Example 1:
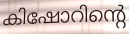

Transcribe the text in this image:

കിഷോറിന്റെ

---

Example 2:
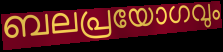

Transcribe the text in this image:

ബലപ്രയോഗവും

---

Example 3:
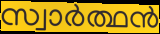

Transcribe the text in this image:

സ്വാർത്ഥൻ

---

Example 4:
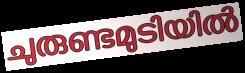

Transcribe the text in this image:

ചുരുണ്ടമുടിയിൽ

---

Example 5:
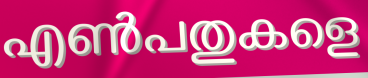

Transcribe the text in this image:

എൺപതുകളെ